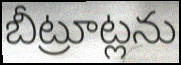
బీట్రూట్లను